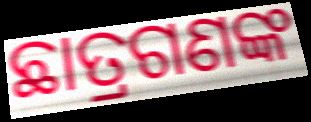
ଛାତ୍ରଗଣଙ୍କ